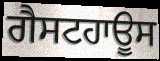
ਗੈਸਟਹਾਊਸ